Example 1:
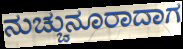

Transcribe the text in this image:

ನುಚ್ಚುನೂರಾದಾಗ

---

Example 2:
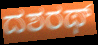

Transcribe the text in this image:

ದಶರಥ್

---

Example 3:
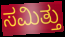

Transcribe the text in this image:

ಸಮಿತ್ತು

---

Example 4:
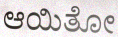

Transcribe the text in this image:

ಆಯಿತೋ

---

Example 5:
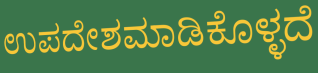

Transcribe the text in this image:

ಉಪದೇಶಮಾಡಿಕೊಳ್ಳದೆ